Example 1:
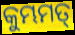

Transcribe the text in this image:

କୁମ୍ଭମତ୍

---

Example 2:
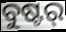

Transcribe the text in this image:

ବୁଷ୍ଟର୍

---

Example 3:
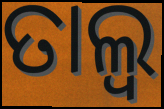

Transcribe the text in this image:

ତାଲ୍ୱ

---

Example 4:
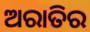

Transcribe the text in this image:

ଅରାତିର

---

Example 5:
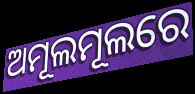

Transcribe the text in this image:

ଅମୂଲମୂଲରେ